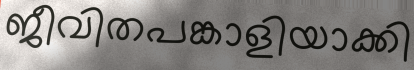
ജീവിതപങ്കാളിയാക്കി